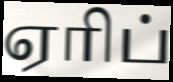
ஏரிப்